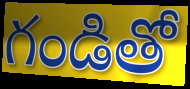
గండితో